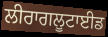
ਲੀਰਾਗਲੂਟਾਈਡ